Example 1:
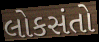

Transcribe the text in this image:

લોકસંતો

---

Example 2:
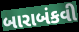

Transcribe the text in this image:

બારાબંકવી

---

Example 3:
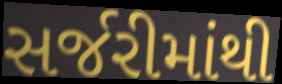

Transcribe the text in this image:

સર્જરીમાંથી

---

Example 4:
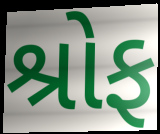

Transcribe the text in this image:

શ્રોફ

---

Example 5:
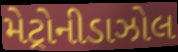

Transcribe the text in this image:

મેટ્રોનીડાઝોલ